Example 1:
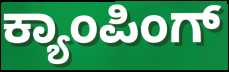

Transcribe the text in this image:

ಕ್ಯಾಂಪಿಂಗ್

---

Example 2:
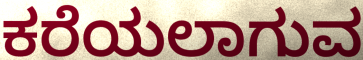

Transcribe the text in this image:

ಕರೆಯಲಾಗುವ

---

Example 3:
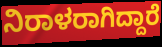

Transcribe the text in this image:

ನಿರಾಳರಾಗಿದ್ದಾರೆ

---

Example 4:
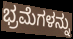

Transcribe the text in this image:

ಭ್ರಮೆಗಳನ್ನು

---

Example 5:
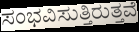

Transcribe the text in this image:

ಸಂಭವಿಸುತ್ತಿರುತ್ತವೆ